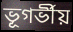
ভূগর্ভীয়